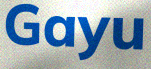
Gayu